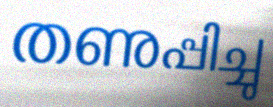
തണുപ്പിച്ചു